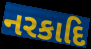
નરકાદિ